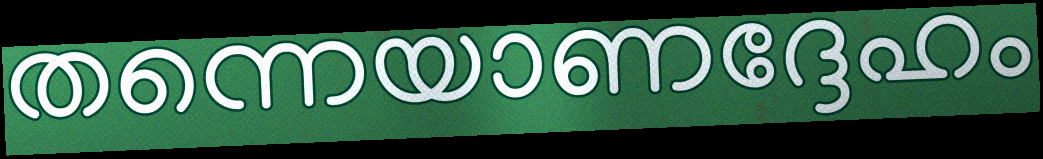
തന്നെയാണദ്ദേഹം